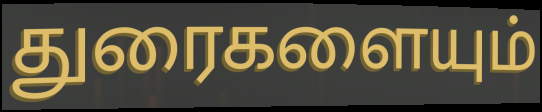
துரைகளையும்